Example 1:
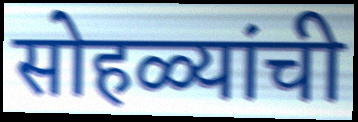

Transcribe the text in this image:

सोहळ्यांची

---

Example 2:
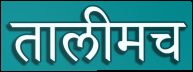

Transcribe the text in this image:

तालीमच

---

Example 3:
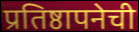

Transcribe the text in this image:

प्रतिष्ठापनेची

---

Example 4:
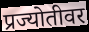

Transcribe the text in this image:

प्रज्योतीवर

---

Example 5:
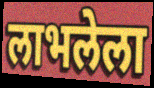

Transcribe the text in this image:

लाभलेला